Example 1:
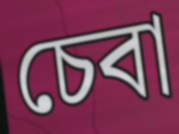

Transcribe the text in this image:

চেবা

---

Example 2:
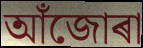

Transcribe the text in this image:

আঁজোৰা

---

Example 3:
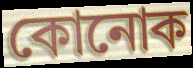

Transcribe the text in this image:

কোনোক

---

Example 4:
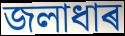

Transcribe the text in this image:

জলাধাৰ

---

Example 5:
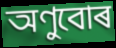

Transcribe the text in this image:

অণুবোৰ